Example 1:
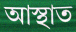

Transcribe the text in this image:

আস্থাত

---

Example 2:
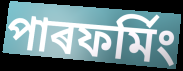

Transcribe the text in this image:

পাৰফৰ্মিং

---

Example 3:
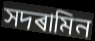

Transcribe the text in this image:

সদৰামিন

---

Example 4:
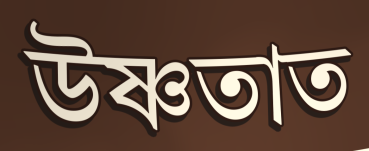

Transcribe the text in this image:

উষ্ণতাত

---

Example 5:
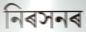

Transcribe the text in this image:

নিৰসনৰ